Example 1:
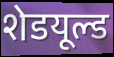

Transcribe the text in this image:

शेडयूल्ड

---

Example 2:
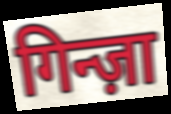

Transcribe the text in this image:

गिन्ज़ा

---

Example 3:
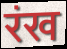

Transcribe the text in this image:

रंख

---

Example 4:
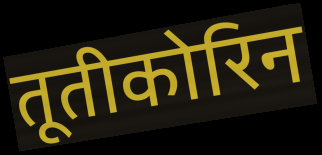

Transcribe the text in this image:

तूतीकोरिन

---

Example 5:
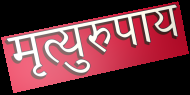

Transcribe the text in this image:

मृत्युरुपाय